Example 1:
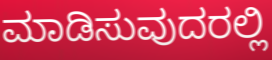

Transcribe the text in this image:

ಮಾಡಿಸುವುದರಲ್ಲಿ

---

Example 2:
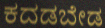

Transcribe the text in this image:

ಕದಡಬೇಡ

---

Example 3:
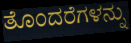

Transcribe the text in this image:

ತೊಂದರೆಗಳನ್ನು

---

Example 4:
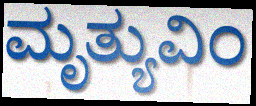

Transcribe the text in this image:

ಮೃತ್ಯುವಿಂ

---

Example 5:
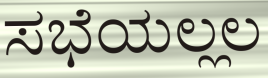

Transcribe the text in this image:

ಸಭೆಯಲ್ಲಲ